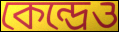
কেন্দ্রেও